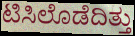
ಟಿಸಿಲೊಡೆದಿತ್ತು